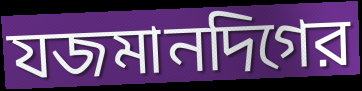
যজমানদিগের